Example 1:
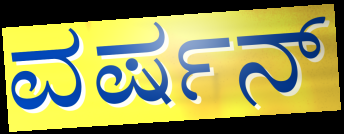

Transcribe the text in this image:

ವರ್ಷನ್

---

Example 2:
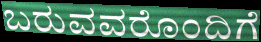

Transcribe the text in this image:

ಬರುವವರೊಂದಿಗೆ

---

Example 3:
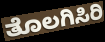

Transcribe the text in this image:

ತೊಲಗಿಸಿರಿ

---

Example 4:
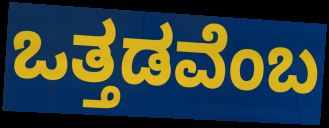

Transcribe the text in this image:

ಒತ್ತಡವೆಂಬ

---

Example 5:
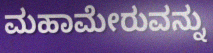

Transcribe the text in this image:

ಮಹಾಮೇರುವನ್ನು